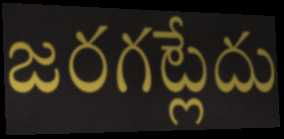
జరగట్లేదు